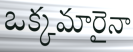
ఒక్కమారైనా